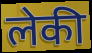
लेकी